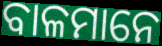
ବାଳମାନେ